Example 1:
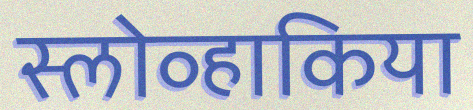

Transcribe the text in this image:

स्लोव्हाकिया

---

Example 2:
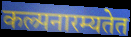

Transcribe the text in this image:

कल्पनारम्यतेत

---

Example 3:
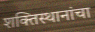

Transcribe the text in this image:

शक्तिस्थानांचा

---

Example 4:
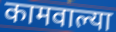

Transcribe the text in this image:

कामवाल्या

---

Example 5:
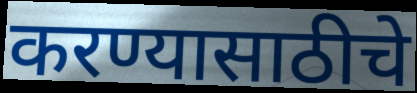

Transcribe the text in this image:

करण्यासाठीचे